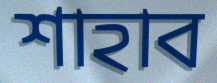
শাহাব